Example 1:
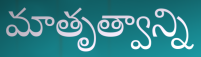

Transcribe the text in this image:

మాతృత్వాన్ని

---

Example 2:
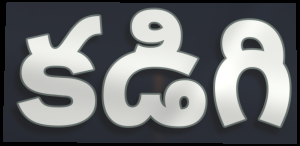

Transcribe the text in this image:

కడిగి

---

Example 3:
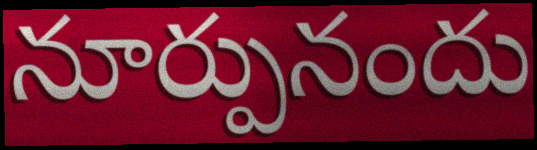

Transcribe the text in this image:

నూర్పునందు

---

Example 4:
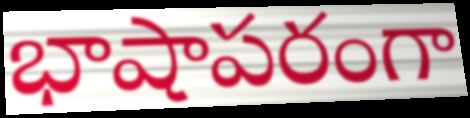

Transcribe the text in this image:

భాషాపరంగా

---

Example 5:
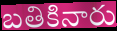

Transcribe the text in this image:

బతికినారు